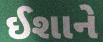
ઈશાને